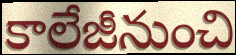
కాలేజీనుంచి